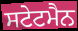
ਸਟੇਟਮੈਨ